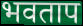
भवताप